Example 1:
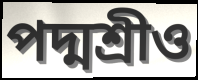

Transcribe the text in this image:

পদ্মশ্রীও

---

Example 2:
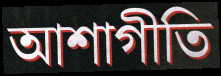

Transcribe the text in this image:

আশাগীতি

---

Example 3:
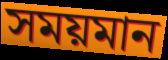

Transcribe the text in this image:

সময়মান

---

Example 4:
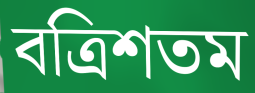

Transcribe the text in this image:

বত্রিশতম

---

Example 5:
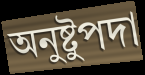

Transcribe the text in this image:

অনুষ্টুপদা